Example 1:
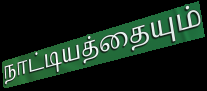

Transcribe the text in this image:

நாட்டியத்தையும்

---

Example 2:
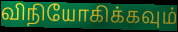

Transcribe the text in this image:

விநியோகிக்கவும்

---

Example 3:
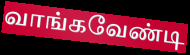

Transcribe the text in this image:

வாங்கவேண்டி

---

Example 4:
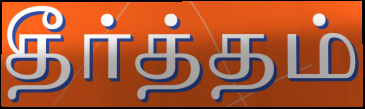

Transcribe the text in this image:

தீர்த்தம்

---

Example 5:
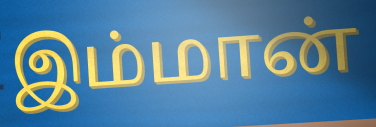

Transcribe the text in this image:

இம்மான்